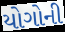
યોગોની